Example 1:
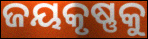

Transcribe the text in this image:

ଜୟକୃଷ୍ଣକୁ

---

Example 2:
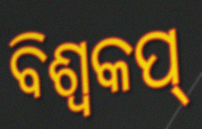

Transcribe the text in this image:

ବିଶ୍ୱକପ୍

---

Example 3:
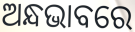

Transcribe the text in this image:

ଅନ୍ଧଭାବରେ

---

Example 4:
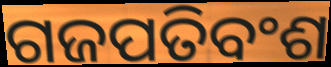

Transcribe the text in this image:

ଗଜପତିବଂଶ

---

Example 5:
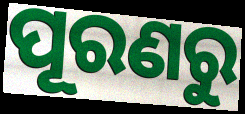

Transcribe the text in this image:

ପୂରଣରୁ